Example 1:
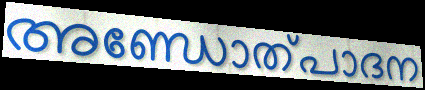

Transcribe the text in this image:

അണ്ഡോത്പാദന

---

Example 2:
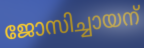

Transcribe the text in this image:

ജോസിച്ചായന്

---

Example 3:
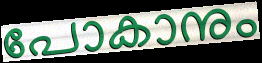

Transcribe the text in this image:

പോകാനും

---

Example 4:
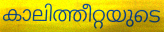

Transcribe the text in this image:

കാലിത്തീറ്റയുടെ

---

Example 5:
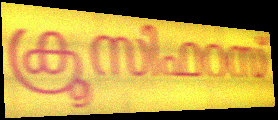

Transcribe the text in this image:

ക്രൂസിഫറസ്